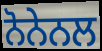
ਨੋਨੇਨਲ